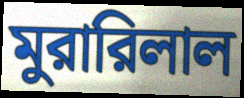
মুরারিলাল